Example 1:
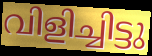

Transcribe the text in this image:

വിളിച്ചിട്ടു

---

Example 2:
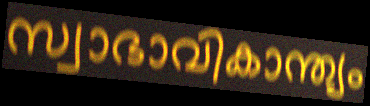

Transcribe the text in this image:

സ്വാഭാവികാന്ത്യം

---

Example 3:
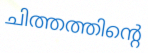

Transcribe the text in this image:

ചിത്തത്തിന്റെ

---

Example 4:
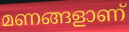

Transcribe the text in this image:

മണങ്ങളാണ്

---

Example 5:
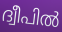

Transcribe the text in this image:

ദ്വീപിൽ